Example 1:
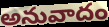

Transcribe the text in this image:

అనువాదం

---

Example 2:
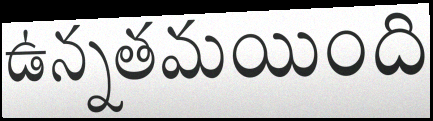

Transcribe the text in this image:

ఉన్నతమయింది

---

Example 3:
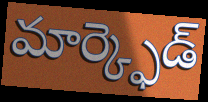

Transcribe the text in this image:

మార్క్ఫెడ్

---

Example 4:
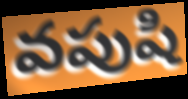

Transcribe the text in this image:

వపుషి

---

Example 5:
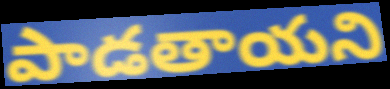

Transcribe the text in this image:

పాడతాయని